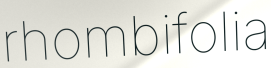
rhombifolia